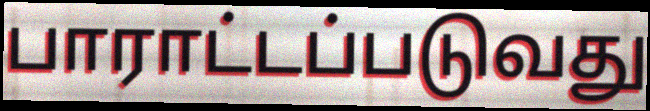
பாராட்டப்படுவது